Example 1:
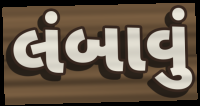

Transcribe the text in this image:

લંબાવું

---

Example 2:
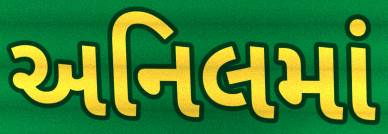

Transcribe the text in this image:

અનિલમાં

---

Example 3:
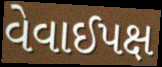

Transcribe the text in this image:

વેવાઈપક્ષ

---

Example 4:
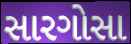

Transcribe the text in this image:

સારગોસા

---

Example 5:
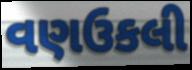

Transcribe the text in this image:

વણઉકલી